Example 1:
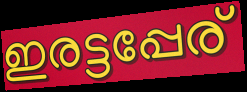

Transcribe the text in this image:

ഇരട്ടപ്പേര്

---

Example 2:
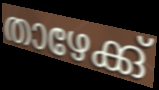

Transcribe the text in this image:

താഴേക്കു്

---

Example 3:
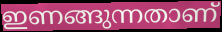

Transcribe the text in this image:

ഇണങ്ങുന്നതാണ്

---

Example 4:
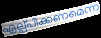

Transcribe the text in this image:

ഏല്പ്പിക്കണമെന്ന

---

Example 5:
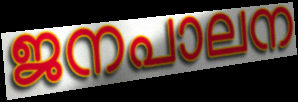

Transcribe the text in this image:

ജനപാലന